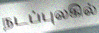
நடப்புலகில்